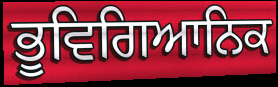
ਭੂਵਿਗਿਆਨਿਕ